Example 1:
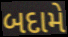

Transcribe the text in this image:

બદામે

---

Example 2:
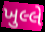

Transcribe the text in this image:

ખુલ્લે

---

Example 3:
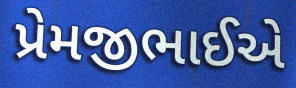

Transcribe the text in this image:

પ્રેમજીભાઈએ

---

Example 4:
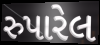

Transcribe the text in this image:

રુપારેલ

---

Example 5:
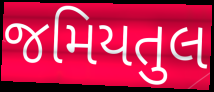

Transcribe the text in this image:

જમિયતુલ